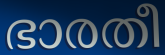
ഭാരതീ